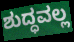
ಶುದ್ಧವಲ್ಲ